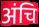
अंचि